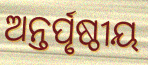
ଅନ୍ତର୍ପୃଷ୍ଠୀୟ